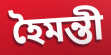
হৈমন্তী